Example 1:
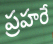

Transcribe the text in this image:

ప్రహరే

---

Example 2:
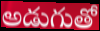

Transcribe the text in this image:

అడుగుతో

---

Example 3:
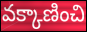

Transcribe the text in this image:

వక్కాణించి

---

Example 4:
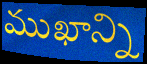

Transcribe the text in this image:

ముఖాన్ని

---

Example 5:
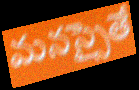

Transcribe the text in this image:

మనస్సైతే